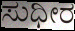
ಸುಧೀರ